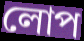
লোপ